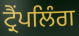
ਟ੍ਰੈਂਪਲਿੰਗ